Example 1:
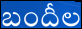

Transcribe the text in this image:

బందీల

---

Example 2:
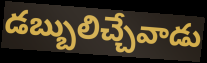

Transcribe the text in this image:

డబ్బులిచ్చేవాడు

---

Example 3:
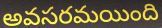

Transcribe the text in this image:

అవసరమయింది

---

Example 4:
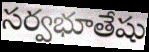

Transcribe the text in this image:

సర్వభూతేషు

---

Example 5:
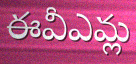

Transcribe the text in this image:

ఈవీఎమ్ల